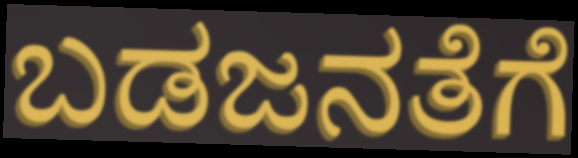
ಬಡಜನತೆಗೆ